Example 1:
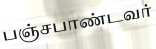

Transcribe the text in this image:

பஞ்சபாண்டவர்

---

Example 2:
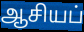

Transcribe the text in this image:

ஆசியப்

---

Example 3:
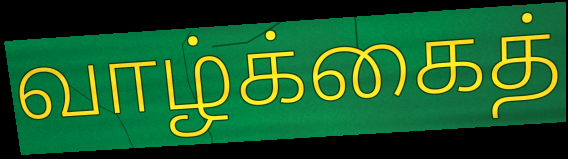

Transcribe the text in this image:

வாழ்க்கைத்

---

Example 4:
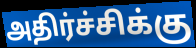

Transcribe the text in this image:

அதிர்ச்சிக்கு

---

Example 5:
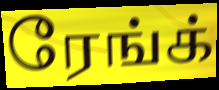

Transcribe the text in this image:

ரேங்க்